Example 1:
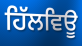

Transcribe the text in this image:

ਹਿੱਲਵਿਊ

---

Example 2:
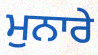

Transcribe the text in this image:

ਮੁਨਾਰੇ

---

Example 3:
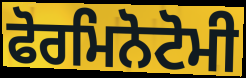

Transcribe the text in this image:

ਫੋਰਮਿਨੋਟੋਮੀ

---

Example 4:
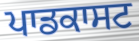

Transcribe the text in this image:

ਪਾਡਕਾਸਟ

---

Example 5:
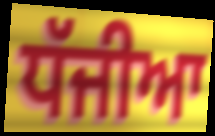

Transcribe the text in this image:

ਧੱਜੀਆ